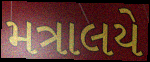
મત્રાલયે